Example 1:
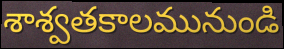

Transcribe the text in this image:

శాశ్వతకాలమునుండి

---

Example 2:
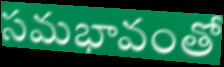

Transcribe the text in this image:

సమభావంతో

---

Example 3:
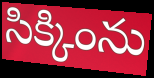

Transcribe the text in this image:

సిక్కింను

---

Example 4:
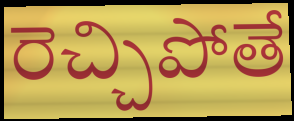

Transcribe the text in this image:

రెచ్చిపోతే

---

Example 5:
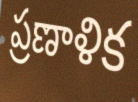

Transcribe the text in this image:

ప్రణాళిక